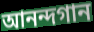
আনন্দগান